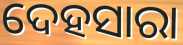
ଦେହସାରା